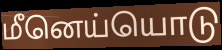
மீனெய்யொடு